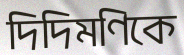
দিদিমণিকে